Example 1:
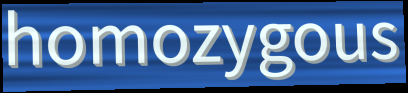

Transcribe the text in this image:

homozygous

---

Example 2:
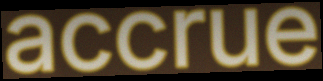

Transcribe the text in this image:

accrue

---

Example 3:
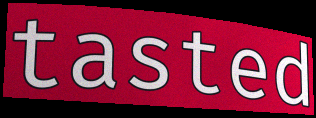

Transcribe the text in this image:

tasted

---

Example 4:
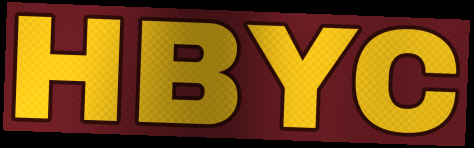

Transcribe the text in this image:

HBYC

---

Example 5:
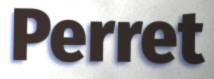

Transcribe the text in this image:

Perret